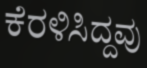
ಕೆರಳಿಸಿದ್ದವು